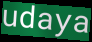
udaya